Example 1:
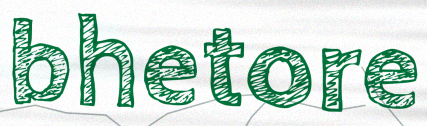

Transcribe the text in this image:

bhetore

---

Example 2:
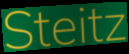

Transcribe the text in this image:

Steitz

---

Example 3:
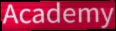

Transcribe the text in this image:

Academy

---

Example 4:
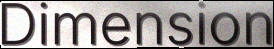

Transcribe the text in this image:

Dimension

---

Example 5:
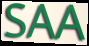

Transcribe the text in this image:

SAA